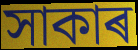
সাকাৰ